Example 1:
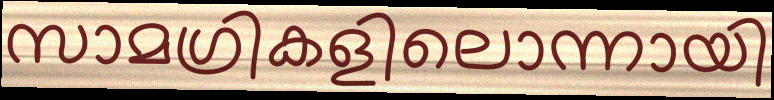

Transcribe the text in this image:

സാമഗ്രികളിലൊന്നായി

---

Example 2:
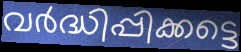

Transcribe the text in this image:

വർദ്ധിപ്പിക്കട്ടെ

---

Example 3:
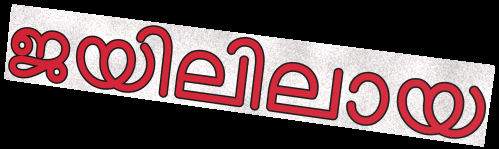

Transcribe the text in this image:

ജയിലിലായ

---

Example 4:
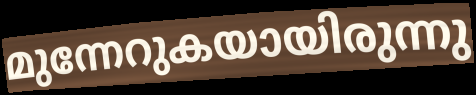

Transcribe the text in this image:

മുന്നേറുകയായിരുന്നു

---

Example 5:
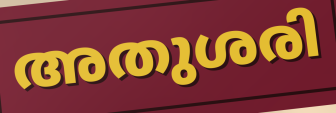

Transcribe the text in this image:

അതുശരി